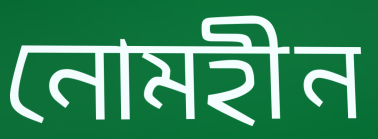
নোমহীন